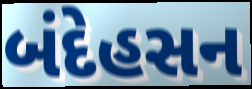
બંદેહસન